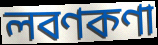
লবণকণা